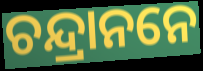
ଚନ୍ଦ୍ରାନନେ